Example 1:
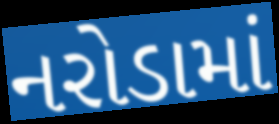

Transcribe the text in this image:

નરોડામાં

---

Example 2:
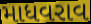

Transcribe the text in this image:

માધવરાવ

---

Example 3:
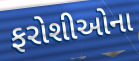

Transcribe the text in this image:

ફરોશીઓના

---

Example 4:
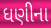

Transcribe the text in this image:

ધણીના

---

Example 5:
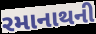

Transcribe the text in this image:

રમાનાથની